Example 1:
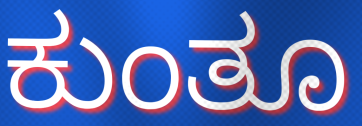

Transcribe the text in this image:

ಕುಂತೂ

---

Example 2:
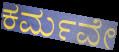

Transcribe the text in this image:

ಕರ್ಮವೇ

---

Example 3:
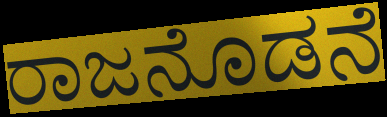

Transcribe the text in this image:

ರಾಜನೊಡನೆ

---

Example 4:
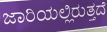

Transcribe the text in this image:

ಜಾರಿಯಲ್ಲಿರುತ್ತದೆ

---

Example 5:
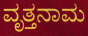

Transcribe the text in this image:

ವೃತ್ತನಾಮ